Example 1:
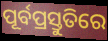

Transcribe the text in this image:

ପୂର୍ବପ୍ରସ୍ତୁତିରେ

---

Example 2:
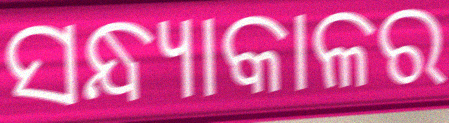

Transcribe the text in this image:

ସନ୍ଧ୍ୟାକାଳର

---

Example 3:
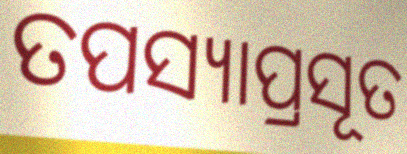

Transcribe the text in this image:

ତପସ୍ୟାପ୍ରସୂତ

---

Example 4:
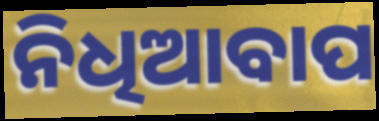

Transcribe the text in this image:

ନିଧିଆବାପ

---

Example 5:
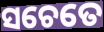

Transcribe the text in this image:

ସଚେତେ